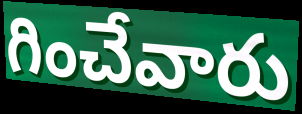
గించేవారు